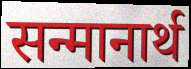
सन्मानार्थ